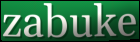
zabuke